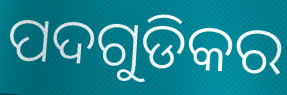
ପଦଗୁଡିକର